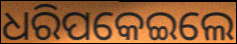
ଧରିପକେଇଲେ